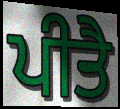
ਪੀਤੈ